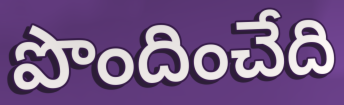
పొందించేది